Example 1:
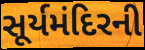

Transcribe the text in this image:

સૂર્યમંદિરની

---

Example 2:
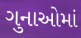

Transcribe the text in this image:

ગુનાઓમાં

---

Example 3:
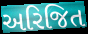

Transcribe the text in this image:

અરિજિત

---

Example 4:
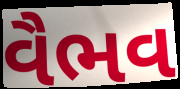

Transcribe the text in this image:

વૈભવ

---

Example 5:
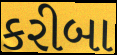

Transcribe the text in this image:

કરીબા